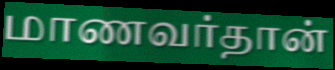
மாணவர்தான்